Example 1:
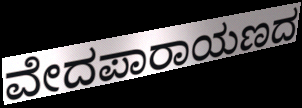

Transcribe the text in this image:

ವೇದಪಾರಾಯಣದ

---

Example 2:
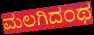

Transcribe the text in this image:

ಮಲಗಿದಂಥ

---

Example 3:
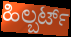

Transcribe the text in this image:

ಹಿಲ್ಬರ್ಟ್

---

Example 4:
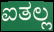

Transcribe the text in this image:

ಐತಲ್ಲ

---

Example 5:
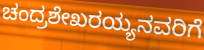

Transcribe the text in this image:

ಚಂದ್ರಶೇಖರಯ್ಯನವರಿಗೆ